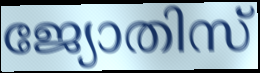
ജ്യോതിസ്